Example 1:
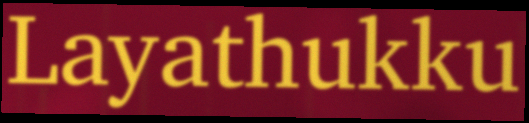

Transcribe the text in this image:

Layathukku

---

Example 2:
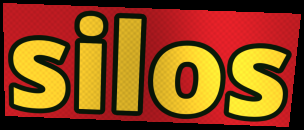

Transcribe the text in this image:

silos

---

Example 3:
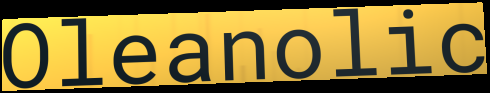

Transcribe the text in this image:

Oleanolic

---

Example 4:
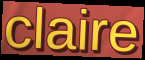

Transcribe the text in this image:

claire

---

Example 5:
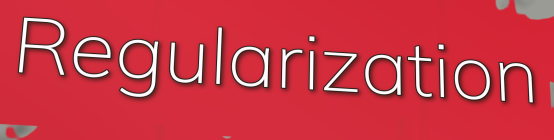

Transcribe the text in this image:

Regularization